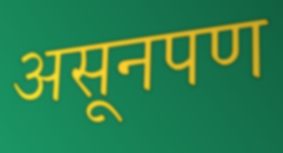
असूनपण